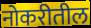
नोकरीतील